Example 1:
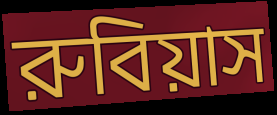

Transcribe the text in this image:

রুবিয়াস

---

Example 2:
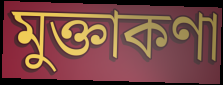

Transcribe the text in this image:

মুক্তাকণা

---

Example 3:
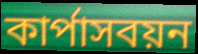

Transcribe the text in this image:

কার্পাসবয়ন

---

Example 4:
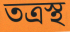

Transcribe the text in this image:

তত্রস্থ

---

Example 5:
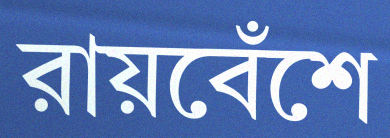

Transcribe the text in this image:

রায়বেঁশে